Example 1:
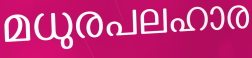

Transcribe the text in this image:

മധുരപലഹാര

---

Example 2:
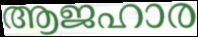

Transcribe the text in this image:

ആജഹാര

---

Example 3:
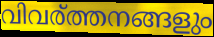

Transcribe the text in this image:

വിവര്ത്തനങ്ങളും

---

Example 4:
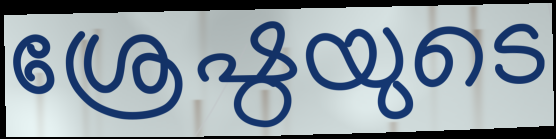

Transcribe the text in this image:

ശ്രേഷ്ഠയുടെ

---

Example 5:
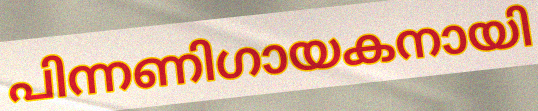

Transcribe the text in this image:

പിന്നണിഗായകനായി